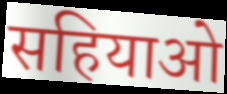
सहियाओ